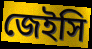
জেইসি